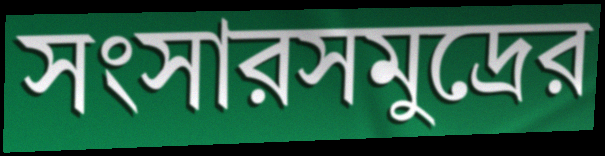
সংসারসমুদ্রের